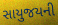
સાયુજયની